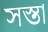
সস্তা